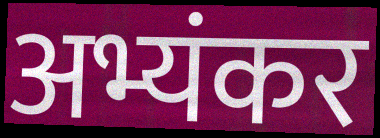
अभ्यंकर